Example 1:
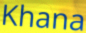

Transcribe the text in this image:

Khana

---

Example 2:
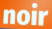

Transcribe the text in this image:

noir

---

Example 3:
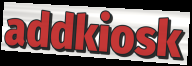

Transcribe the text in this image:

addkiosk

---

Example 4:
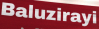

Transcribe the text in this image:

Baluzirayi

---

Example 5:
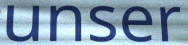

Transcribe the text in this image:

unser